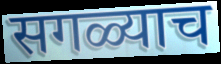
सगळ्याच